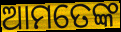
ଆମତେଙ୍କ